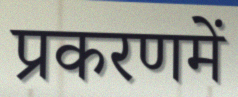
प्रकरणमें